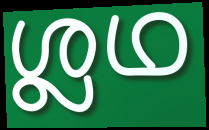
ശ്ലഥ